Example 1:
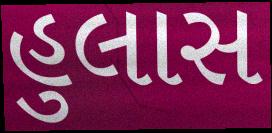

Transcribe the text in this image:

હુલાસ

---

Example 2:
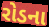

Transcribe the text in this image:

રોડના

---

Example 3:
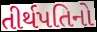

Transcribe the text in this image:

તીર્થપતિનો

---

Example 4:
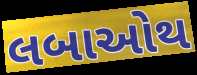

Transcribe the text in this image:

લબાઓથ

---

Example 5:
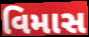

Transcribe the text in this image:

વિમાસ